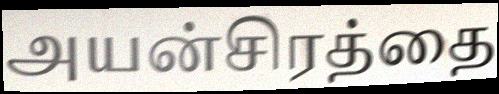
அயன்சிரத்தை